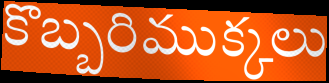
కొబ్బరిముక్కలు